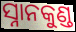
ସ୍ନାନକୁଣ୍ଡ